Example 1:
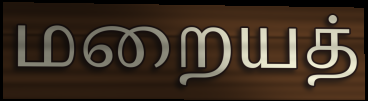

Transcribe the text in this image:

மறையத்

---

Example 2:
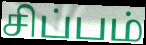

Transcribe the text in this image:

சிப்பம்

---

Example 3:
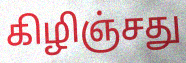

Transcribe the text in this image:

கிழிஞ்சது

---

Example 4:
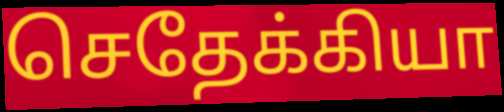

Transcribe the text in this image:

செதேக்கியா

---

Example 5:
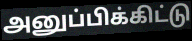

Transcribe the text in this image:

அனுப்பிக்கிட்டு